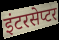
इंटरसेप्टर